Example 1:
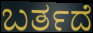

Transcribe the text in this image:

ಬರ್ತದೆ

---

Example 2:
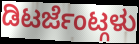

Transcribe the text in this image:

ಡಿಟರ್ಜೆಂಟ್ಗಳು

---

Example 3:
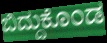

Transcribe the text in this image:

ಬಿದ್ದುಕೊಂಡ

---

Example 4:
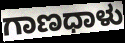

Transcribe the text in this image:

ಗಾಣಧಾಳು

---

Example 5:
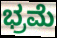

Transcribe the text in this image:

ಭ್ರಮೆ